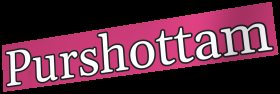
Purshottam